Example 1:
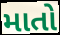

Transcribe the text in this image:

માતો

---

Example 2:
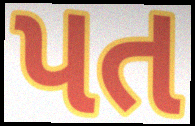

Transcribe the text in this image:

પત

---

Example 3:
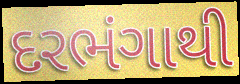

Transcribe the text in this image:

દરભંગાથી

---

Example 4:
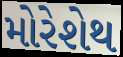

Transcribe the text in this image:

મોરેશેથ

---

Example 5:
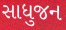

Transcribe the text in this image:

સાધુજન